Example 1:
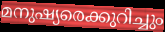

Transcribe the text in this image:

മനുഷ്യരെക്കുറിച്ചും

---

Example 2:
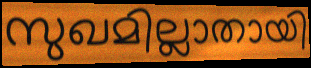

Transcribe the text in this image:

സുഖമില്ലാതായി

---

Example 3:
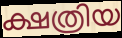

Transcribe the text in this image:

ക്ഷത്രിയ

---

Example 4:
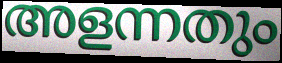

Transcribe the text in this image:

അളന്നതും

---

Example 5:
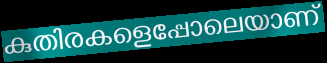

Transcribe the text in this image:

കുതിരകളെപ്പോലെയാണ്